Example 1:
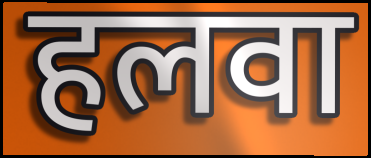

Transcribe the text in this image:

हलवा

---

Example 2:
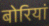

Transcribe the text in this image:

बोरियां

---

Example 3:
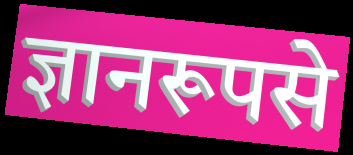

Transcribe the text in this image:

ज्ञानरूपसे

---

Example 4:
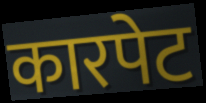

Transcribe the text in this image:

कारपेट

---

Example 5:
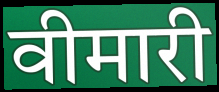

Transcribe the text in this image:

वीमारी